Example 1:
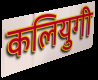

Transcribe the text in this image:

कलियुगी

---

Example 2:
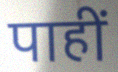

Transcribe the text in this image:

पाहीं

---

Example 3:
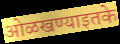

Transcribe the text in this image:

ओळखण्याइतके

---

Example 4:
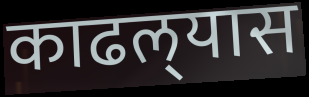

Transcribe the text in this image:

काढल्यास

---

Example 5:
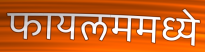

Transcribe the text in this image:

फायलममध्ये